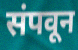
संपवून